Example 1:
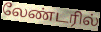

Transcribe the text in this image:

லேண்டரில்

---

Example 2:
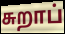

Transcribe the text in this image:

சுறாப்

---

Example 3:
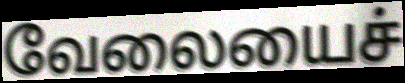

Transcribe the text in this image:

வேலையைச்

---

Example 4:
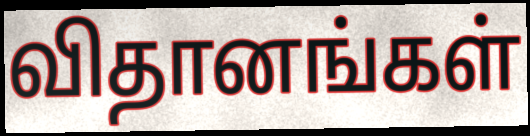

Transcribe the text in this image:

விதானங்கள்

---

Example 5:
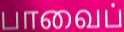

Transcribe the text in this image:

பாவைப்